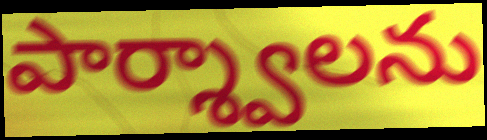
పార్శ్వాలను